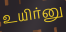
உயிர்னு